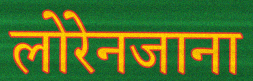
लोरेनजाना